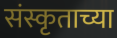
संस्कृताच्या